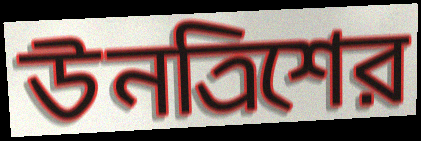
উনত্রিশের